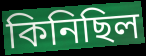
কিনিছিল